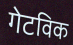
गेटविक